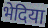
भेदिया